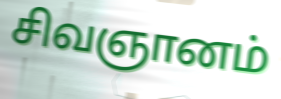
சிவஞானம்